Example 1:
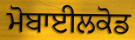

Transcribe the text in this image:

ਮੋਬਾਈਲਕੋਡ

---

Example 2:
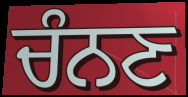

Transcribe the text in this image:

ਚੰਨਣ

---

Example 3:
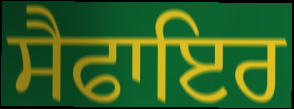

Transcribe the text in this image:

ਸੈਫਾਇਰ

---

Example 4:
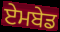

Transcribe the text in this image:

ਏਮਬੇਡ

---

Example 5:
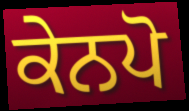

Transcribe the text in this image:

ਕੇਨਪੋ